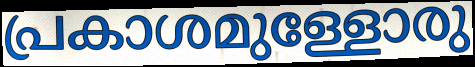
പ്രകാശമുള്ളോരു